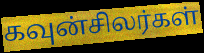
கவுன்சிலர்கள்